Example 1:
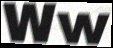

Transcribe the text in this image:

Ww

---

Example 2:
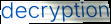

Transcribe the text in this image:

decryption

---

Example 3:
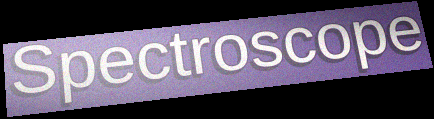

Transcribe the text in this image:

Spectroscope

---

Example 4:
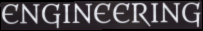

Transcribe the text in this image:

ENGINEERING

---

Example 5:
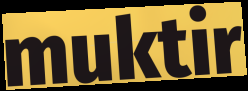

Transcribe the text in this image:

muktir